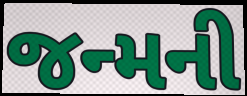
જન્મની